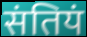
संतियं